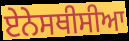
ਏਨੇਸਥੀਸੀਆ